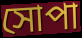
সোপা